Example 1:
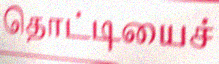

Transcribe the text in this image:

தொட்டியைச்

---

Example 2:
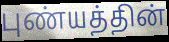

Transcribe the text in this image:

புண்யத்தின்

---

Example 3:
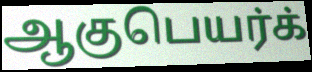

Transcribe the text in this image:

ஆகுபெயர்க்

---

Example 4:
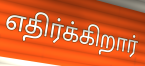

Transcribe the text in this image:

எதிர்க்கிறார்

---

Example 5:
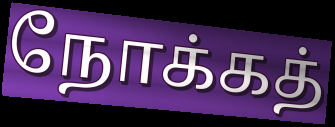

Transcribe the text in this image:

நோக்கத்